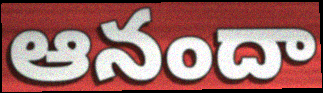
ఆనందా